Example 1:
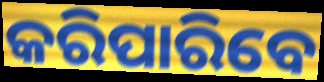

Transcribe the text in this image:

କରିପାରିବେ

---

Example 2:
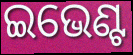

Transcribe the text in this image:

ଇଭେଣ୍ଟ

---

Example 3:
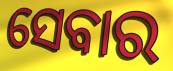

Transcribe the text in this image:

ସେବାର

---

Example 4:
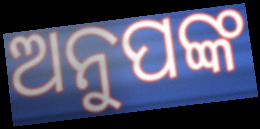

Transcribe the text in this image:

ଅନୁପଙ୍କ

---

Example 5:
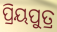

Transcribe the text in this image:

ପ୍ରିୟପୁତ୍ର